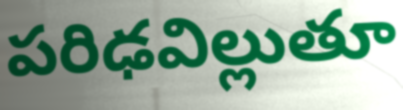
పరిఢవిల్లుతూ